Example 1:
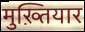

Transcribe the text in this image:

मुख़्तियार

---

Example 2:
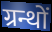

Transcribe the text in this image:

ग्रन्थों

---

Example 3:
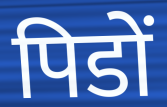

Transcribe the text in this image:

पिडों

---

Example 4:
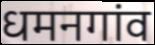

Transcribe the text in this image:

धमनगांव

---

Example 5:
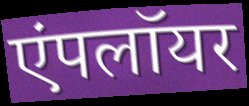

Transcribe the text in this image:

एंपलॉयर